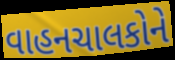
વાહનચાલકોને